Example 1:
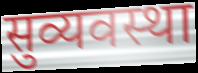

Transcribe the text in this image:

सुव्यवस्था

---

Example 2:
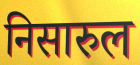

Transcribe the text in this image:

निसारुल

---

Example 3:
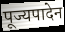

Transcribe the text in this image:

पूज्यपादेन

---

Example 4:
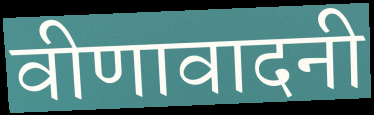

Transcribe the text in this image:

वीणावादनी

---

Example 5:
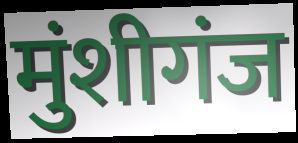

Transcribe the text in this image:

मुंशीगंज